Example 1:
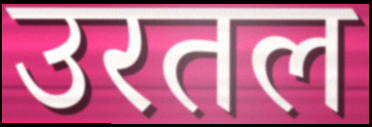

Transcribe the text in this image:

उरतल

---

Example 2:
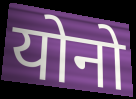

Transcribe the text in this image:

योनो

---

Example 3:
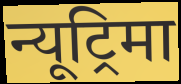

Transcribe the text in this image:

न्यूट्रिमा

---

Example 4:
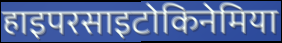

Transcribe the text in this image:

हाइपरसाइटोकिनेमिया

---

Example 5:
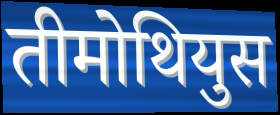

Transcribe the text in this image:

तीमोथियुस